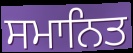
ਸਮਾਨਿਤ